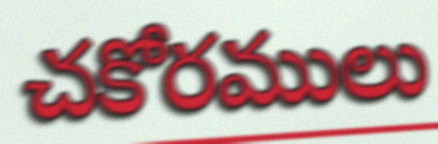
చకోరములు